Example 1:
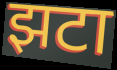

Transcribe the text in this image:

झटा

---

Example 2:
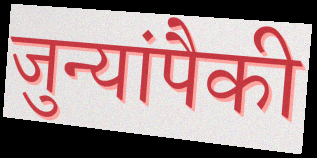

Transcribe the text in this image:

जुन्यांपैकी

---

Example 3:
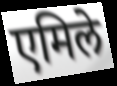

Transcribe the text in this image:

एमिले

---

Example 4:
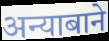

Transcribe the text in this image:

अन्याबाने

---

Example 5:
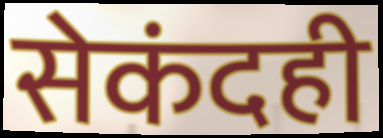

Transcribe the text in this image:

सेकंदही